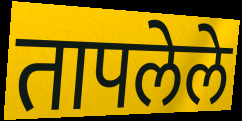
तापलेले